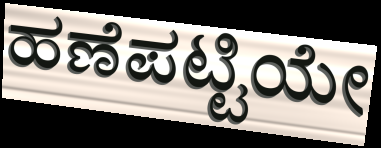
ಹಣೆಪಟ್ಟಿಯೇ